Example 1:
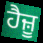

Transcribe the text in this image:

ਹੈਜ਼ੂ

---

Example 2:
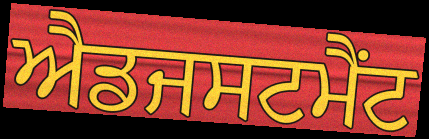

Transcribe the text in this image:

ਐਡਜਸਟਮੈਂਟ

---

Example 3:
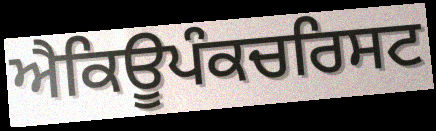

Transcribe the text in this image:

ਐਕਿਊਪੰਕਚਰਿਸਟ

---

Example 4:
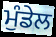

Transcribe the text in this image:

ਮੁੰਡੇਲ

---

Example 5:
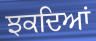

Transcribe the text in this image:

ਝਕਦਿਆਂ